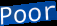
Poor